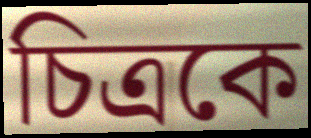
চিত্রকে